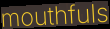
mouthfuls